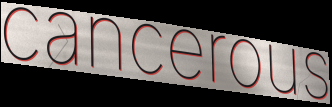
cancerous